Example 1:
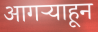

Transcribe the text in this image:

आगऱ्याहून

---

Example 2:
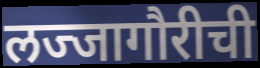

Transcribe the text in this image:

लज्जागौरीची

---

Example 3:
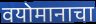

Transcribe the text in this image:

वयोमानाचा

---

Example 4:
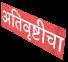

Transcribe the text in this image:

अतिवृष्टीचा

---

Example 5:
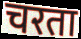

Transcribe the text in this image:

चरता